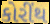
કોરીંથ